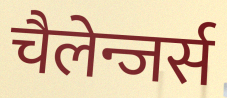
चैलेन्जर्स